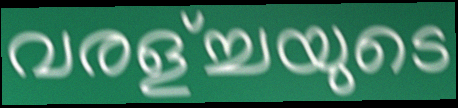
വരള്ച്ചയുടെ